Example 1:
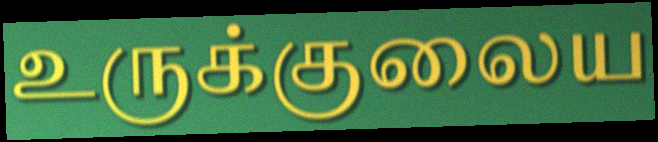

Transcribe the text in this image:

உருக்குலைய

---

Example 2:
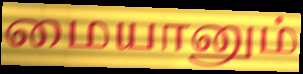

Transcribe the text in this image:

மையானும்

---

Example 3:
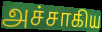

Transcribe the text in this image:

அச்சாகிய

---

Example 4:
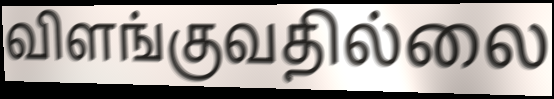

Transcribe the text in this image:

விளங்குவதில்லை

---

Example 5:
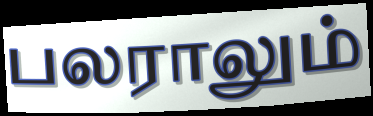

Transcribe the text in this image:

பலராலும்